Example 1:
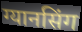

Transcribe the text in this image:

ग्यानसिंग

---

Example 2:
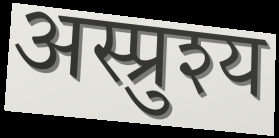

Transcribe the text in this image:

अस्प्रुश्य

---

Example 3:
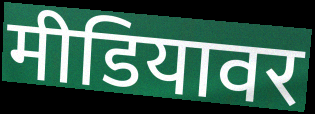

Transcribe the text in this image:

मीडियावर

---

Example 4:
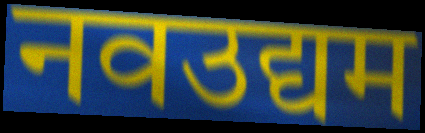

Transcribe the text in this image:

नवउद्यम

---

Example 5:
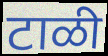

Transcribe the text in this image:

टाळी